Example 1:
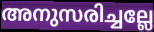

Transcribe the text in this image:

അനുസരിച്ചല്ലേ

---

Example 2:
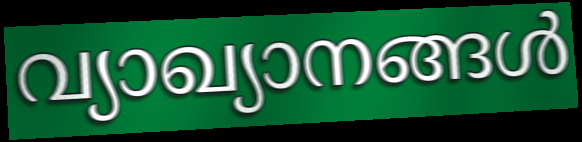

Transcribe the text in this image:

വ്യാഖ്യാനങ്ങൾ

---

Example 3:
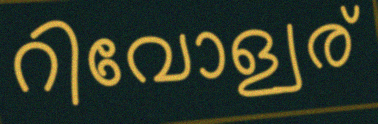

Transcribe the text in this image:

റിവോള്വര്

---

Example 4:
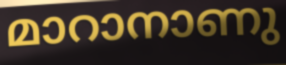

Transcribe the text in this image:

മാറാനാണു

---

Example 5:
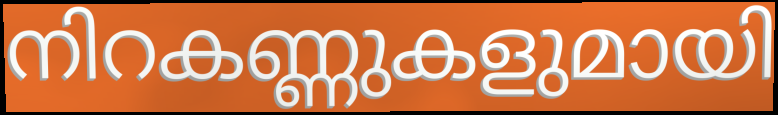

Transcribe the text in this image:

നിറകണ്ണുകളുമായി